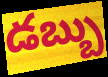
డబ్బు